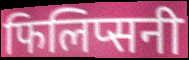
फिलिप्सनी